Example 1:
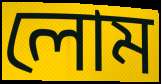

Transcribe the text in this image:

লোম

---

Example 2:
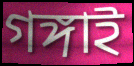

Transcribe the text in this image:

গঙ্গাই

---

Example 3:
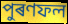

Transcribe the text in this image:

পুৰণফল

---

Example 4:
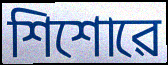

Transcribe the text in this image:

শিশোৱে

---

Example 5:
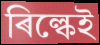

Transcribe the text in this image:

ৰিল্কেই